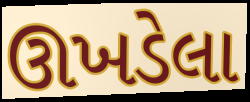
ઊખડેલા